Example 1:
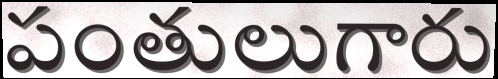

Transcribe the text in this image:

పంతులుగారు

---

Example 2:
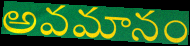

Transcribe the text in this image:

అవమానం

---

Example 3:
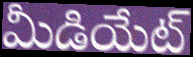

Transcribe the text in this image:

మీడియేట్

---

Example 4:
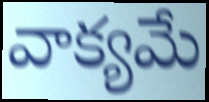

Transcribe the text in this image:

వాక్యమే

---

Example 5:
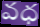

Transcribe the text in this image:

వధ